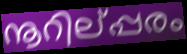
നൂറില്പ്പരം